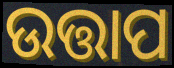
ଉତ୍ତାପ